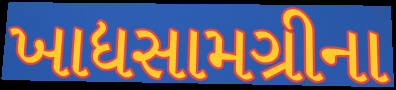
ખાદ્યસામગ્રીના